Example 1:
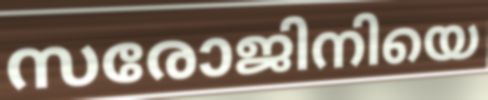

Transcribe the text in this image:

സരോജിനിയെ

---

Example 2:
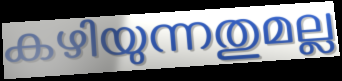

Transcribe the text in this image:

കഴിയുന്നതുമല്ല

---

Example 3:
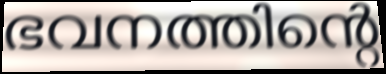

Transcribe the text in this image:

ഭവനത്തിന്റെ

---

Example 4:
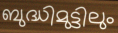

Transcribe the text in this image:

ബുദ്ധിമുട്ടിലും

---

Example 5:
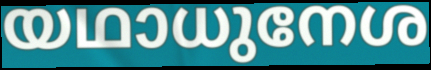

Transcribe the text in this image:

യഥാധുനേശ